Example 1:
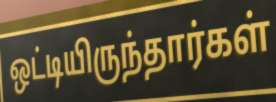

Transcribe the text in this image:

ஒட்டியிருந்தார்கள்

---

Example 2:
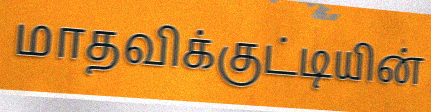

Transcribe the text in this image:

மாதவிக்குட்டியின்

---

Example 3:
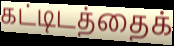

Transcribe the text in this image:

கட்டிடத்தைக்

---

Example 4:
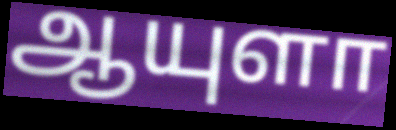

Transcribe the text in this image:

ஆயுளா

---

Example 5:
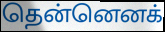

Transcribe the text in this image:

தென்னெனக்